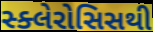
સ્ક્લેરોસિસથી